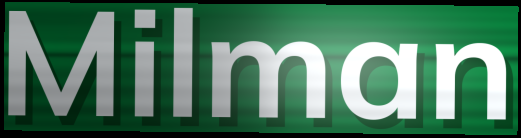
Milman